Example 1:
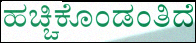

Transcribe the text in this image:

ಹಚ್ಚಿಕೊಂಡಂತಿದೆ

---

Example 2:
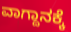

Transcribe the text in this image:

ವಾಗ್ದಾನಕ್ಕೆ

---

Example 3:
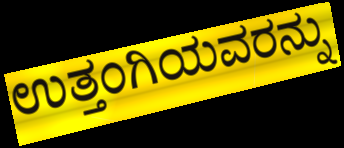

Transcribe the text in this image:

ಉತ್ತಂಗಿಯವರನ್ನು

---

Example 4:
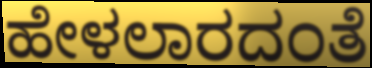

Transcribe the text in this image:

ಹೇಳಲಾರದಂತೆ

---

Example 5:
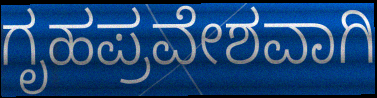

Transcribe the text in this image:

ಗೃಹಪ್ರವೇಶವಾಗಿ